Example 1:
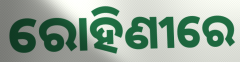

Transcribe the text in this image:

ରୋହିଣୀରେ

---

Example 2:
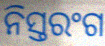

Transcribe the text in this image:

ନିସ୍ତରଂଗ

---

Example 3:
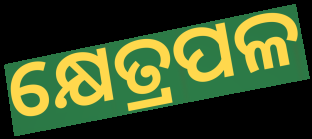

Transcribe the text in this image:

କ୍ଷେତ୍ରପଳ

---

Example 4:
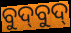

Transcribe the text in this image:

ବୁଦ୍‍ବୁଦ୍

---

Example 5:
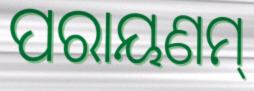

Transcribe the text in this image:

ପରାୟଣମ୍